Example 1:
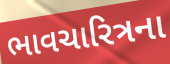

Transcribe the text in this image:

ભાવચારિત્રના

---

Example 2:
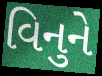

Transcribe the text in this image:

વિનુને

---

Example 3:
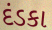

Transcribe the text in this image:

દંડકા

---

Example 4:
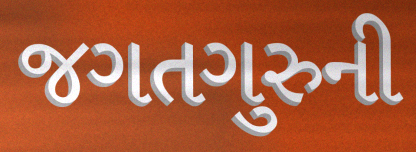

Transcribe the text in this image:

જગતગુરુની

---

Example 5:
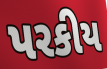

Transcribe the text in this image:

પરકીય